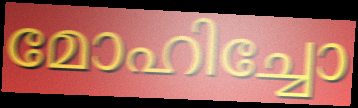
മോഹിച്ചോ